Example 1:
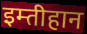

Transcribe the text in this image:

इम्तीहान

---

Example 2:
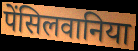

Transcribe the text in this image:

पेंसिलवानिया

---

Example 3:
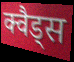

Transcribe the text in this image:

क्वैड्स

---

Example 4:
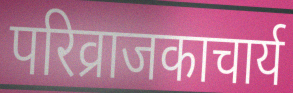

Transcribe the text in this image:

परिव्राजकाचार्य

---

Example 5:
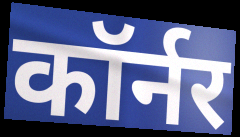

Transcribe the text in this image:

कॉर्नर